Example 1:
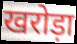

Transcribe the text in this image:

खरोड़ा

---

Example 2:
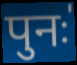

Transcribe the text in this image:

पुनः॑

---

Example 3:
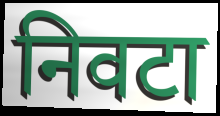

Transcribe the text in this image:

निवटा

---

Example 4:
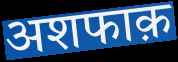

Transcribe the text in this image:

अशफाक़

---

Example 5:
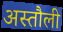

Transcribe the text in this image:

अस्तौली